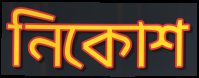
নিকোশ